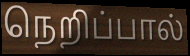
நெறிப்பால்